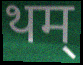
थम्